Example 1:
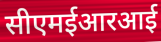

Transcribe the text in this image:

सीएमईआरआई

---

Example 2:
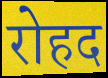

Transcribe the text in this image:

रोहद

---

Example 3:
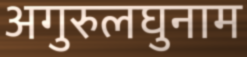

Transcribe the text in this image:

अगुरुलघुनाम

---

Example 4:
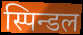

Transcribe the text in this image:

स्पिन्डल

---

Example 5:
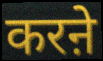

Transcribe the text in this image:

करऩे